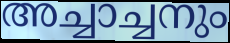
അച്ചാച്ചനും